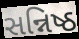
સન્નિષ્ઠ